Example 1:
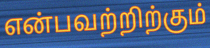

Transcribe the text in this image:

என்பவற்றிற்கும்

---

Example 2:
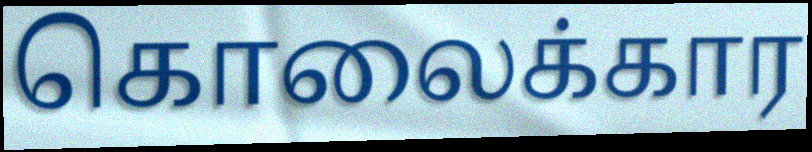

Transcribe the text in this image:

கொலைக்கார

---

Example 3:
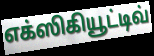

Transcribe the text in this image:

எக்ஸிகியூட்டிவ்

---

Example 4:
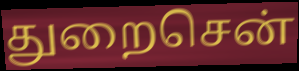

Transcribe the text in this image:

துறைசென்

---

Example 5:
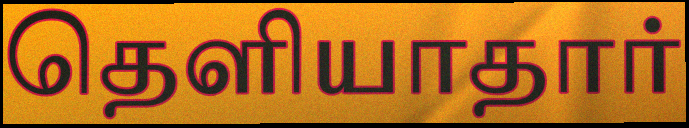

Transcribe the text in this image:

தெளியாதார்